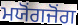
ਮਯੋਂਗਜੋਂਗ